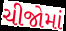
ચીજોમાં